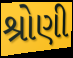
શ્રોણી